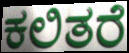
ಕಲಿತರೆ